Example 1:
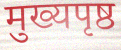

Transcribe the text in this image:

मुख्यपृष्ठ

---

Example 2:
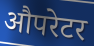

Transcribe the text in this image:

औपरेटर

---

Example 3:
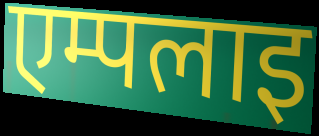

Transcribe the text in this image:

एम्पलाइ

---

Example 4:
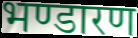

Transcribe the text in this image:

भण्डारण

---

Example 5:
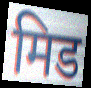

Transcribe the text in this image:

मिड